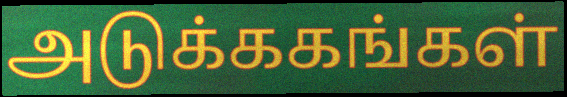
அடுக்ககங்கள்